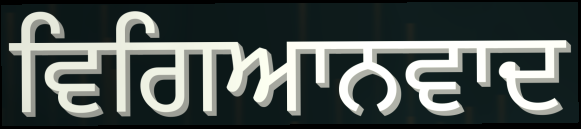
ਵਿਗਿਆਨਵਾਦ